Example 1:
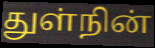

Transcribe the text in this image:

துள்நின்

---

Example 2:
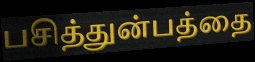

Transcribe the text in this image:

பசித்துன்பத்தை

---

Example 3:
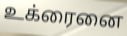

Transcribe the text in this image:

உக்ரைனை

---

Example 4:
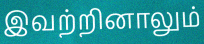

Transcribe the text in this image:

இவற்றினாலும்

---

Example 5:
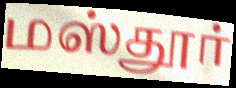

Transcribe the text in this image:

மஸ்தூர்